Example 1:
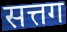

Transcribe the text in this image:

सत्तग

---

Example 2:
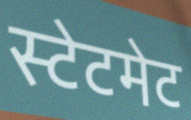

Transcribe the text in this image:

स्टेटमेट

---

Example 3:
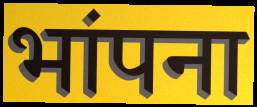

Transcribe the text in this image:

भांपना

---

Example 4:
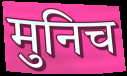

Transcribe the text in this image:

मुनिच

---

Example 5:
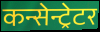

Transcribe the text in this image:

कन्सेन्ट्रेटर